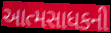
આત્મસાધકની